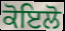
ਕੋਇਲੋ